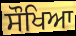
ਸੌਖਿਆ